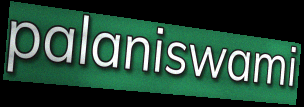
palaniswami